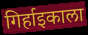
गिर्हाइकाला